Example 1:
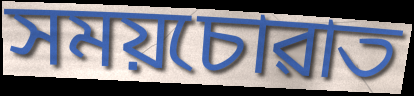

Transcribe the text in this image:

সময়চোৱাত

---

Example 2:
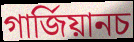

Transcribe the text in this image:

গাৰ্জিয়ানচ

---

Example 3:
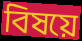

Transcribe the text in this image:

বিষয়ে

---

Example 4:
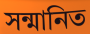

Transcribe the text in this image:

সন্মানিত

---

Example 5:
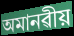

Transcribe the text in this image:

অমানৱীয়